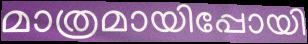
മാത്രമായിപ്പോയി